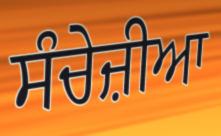
ਸੰਚੇਜ਼ੀਆ